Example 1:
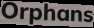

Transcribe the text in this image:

Orphans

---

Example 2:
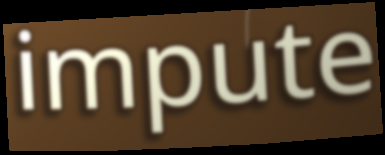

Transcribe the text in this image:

impute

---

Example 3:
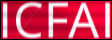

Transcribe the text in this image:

ICFAI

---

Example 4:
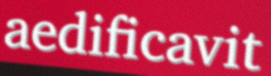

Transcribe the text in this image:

aedificavit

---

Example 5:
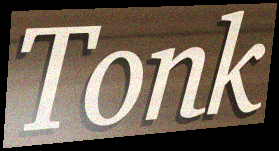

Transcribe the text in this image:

Tonk